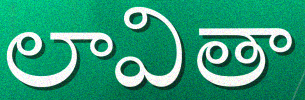
లావితా